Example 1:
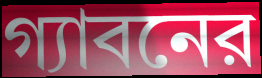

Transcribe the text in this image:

গ্যাবনের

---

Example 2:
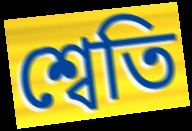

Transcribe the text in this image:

শ্বেতি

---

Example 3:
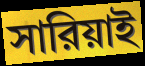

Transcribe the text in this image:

সারিয়াই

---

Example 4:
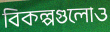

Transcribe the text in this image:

বিকল্পগুলোও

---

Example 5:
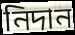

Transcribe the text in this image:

নিদান